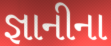
જ્ઞાનીના